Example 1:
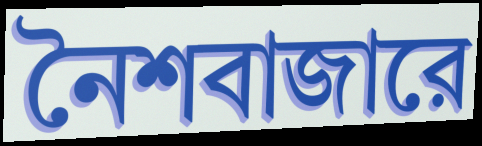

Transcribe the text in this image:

নৈশবাজারে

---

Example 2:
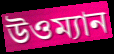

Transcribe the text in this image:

উওম্যান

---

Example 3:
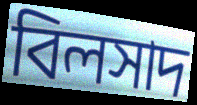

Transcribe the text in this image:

বিলসাদ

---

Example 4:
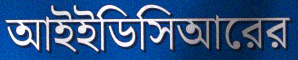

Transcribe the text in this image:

আইইডিসিআরের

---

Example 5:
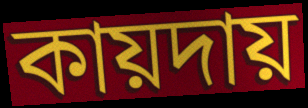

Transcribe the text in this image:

কায়দায়